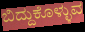
ಬಿದ್ದುಕೊಳ್ಳುವ